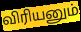
விரியனும்